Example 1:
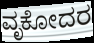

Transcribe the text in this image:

ವೃಕೋದರ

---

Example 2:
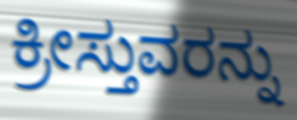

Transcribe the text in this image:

ಕ್ರೀಸ್ತುವರನ್ನು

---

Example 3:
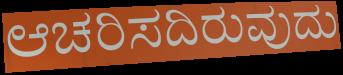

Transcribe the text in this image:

ಆಚರಿಸದಿರುವುದು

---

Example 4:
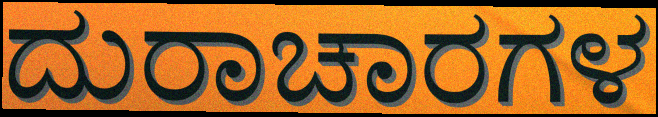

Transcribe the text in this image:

ದುರಾಚಾರಗಳ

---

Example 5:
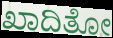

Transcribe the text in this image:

ಖಾದಿತೋ